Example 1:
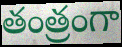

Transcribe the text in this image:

తంత్రంగా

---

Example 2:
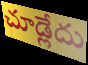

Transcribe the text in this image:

చూడ్లేదు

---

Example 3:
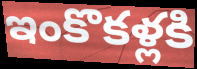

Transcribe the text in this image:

ఇంకొకళ్లకి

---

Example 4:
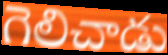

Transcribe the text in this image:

గెలిచాడు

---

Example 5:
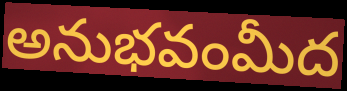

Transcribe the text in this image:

అనుభవంమీద